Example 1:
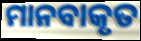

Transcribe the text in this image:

ମାନବାକୃତ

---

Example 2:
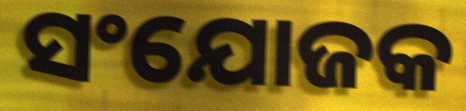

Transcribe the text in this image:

ସଂଯୋଜକ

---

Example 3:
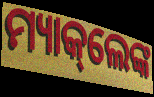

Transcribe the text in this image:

ମ୍ୟାକ୍‌ଲେଙ୍କ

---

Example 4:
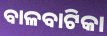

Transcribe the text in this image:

ବାଳବାଟିକା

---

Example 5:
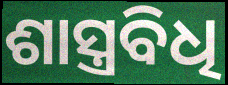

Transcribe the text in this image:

ଶାସ୍ତ୍ରବିଧି